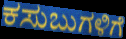
ಕಸುಬುಗಳಿಗೆ